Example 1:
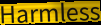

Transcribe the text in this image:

Harmless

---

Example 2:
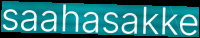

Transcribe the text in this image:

saahasakke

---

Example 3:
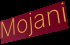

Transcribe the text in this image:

Mojani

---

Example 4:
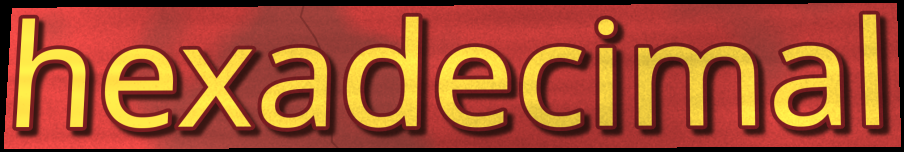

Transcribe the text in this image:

hexadecimal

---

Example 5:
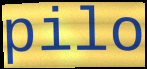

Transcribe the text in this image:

pilo